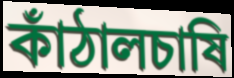
কাঁঠালচাষি